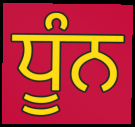
ਧੂੰਨ